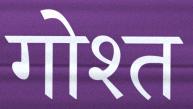
गोश्त